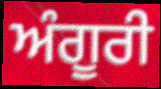
ਅੰਗੂਰੀ